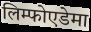
लिम्फोएडेमा